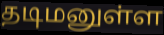
தடிமனுள்ள